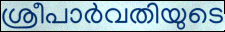
ശ്രീപാർവതിയുടെ